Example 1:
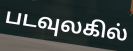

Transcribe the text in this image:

படவுலகில்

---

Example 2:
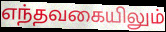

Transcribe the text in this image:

எந்தவகையிலும்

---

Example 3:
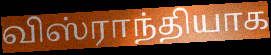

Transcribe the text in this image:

விஸ்ராந்தியாக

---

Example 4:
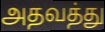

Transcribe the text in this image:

அதவத்து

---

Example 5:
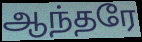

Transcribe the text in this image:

ஆந்தரே